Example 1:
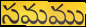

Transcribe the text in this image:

సమము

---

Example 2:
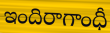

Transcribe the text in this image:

ఇందిరాగాంధీ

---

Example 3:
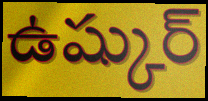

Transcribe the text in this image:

ఉష్కుర్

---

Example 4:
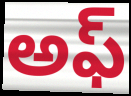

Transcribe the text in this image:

అఫ్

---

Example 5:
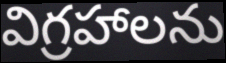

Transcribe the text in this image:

విగ్రహాలను